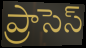
ప్రాసెస్